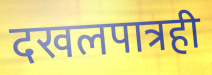
दखलपात्रही